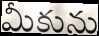
మీకును